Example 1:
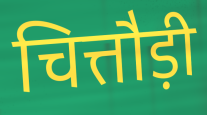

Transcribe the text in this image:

चित्तौड़ी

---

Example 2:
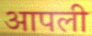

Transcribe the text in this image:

आपली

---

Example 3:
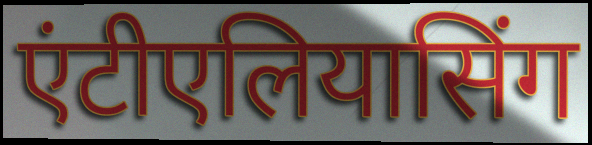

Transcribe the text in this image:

एंटीएलियासिंग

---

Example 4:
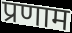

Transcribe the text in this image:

प्रणाम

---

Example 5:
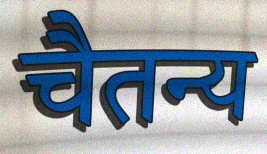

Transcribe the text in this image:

चैतन्य